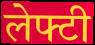
लेफ्टी